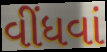
વીંધવાં